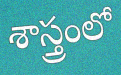
శాస్త్రంలో